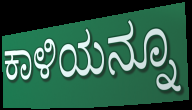
ಕಾಳಿಯನ್ನೂ